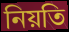
নিয়তি